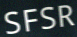
SFSR